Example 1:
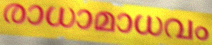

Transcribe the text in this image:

രാധാമാധവം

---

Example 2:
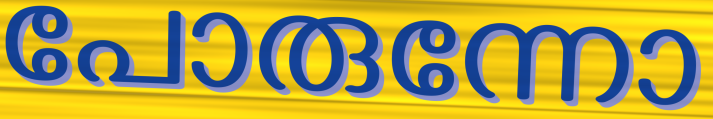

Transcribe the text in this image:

പോരുന്നോ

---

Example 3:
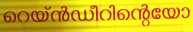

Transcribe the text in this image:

റെയ്ൻഡീറിന്റെയോ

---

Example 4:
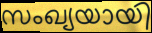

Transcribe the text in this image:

സംഖ്യയായി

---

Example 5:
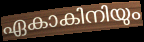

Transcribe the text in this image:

ഏകാകിനിയും